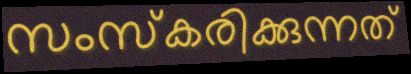
സംസ്കരിക്കുന്നത്